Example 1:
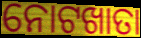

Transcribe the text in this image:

ନୋଟଖାତା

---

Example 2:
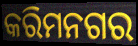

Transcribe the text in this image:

କରିମନଗର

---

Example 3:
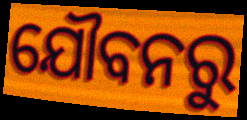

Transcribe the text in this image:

ଯୌବନରୁ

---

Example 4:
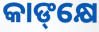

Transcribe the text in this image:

କାଙ୍‌କ୍ଷେ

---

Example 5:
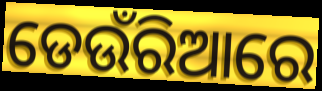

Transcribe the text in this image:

ଡେଉଁରିଆରେ